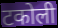
टकोली